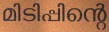
മിടിപ്പിന്റെ